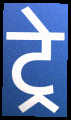
ट्रे